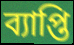
ব্যাপ্তি